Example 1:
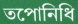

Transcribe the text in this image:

তপোনিধি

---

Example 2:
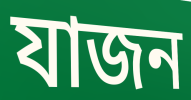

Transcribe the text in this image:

যাজন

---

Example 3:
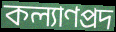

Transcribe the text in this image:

কল্যাণপ্রদ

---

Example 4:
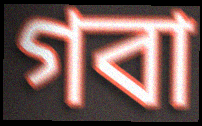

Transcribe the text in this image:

গবা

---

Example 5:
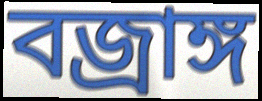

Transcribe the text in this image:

বজ্রাঙ্গ